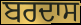
ਬਰਦਾਸ